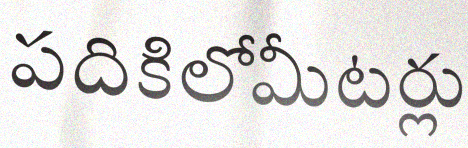
పదికిలోమీటర్లు